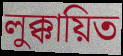
লুক্কায়িত